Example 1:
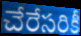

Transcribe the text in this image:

చేరేసరికీ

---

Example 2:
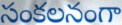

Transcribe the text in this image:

సంకలనంగా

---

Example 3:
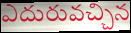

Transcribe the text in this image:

ఎదురువచ్చిన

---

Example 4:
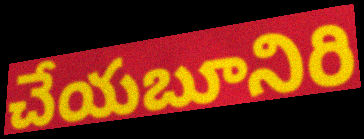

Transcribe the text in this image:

చేయబూనిరి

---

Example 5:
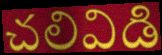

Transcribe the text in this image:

చలివిడి